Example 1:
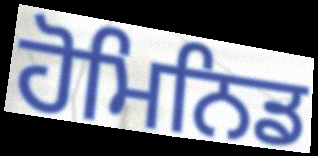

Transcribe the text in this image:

ਹੋਮਿਨਿਡ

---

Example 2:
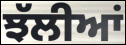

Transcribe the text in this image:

ਝੱਲੀਆਂ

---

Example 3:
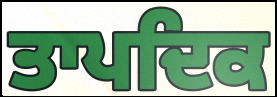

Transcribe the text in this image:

ਤਾਪਦਿਕ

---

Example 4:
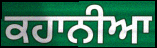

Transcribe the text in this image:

ਕਹਾਨੀਆ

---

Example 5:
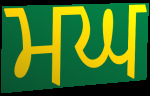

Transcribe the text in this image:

ਮਘ